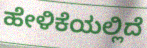
ಹೇಳಿಕೆಯಲ್ಲಿದೆ